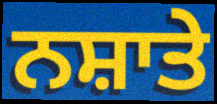
ਨਸ਼ਾਤੇ